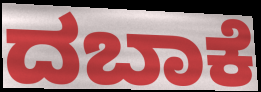
ದಬಾಕೆ